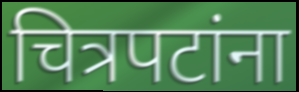
चित्रपटांना